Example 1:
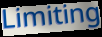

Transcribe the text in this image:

Limiting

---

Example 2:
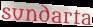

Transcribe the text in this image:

sundarta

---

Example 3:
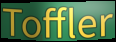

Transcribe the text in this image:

Toffler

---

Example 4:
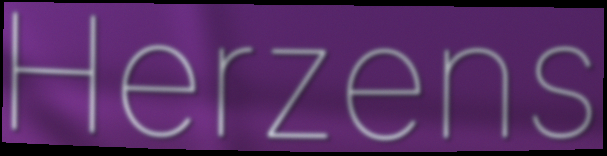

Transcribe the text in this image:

Herzens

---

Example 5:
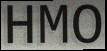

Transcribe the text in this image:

HMO